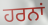
ਹਰਨਾਂ